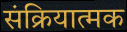
संक्रियात्मक